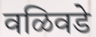
वळिवडे